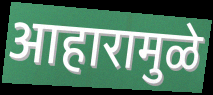
आहारामुळे